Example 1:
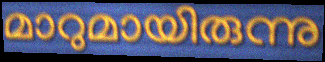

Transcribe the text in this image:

മാറുമായിരുന്നു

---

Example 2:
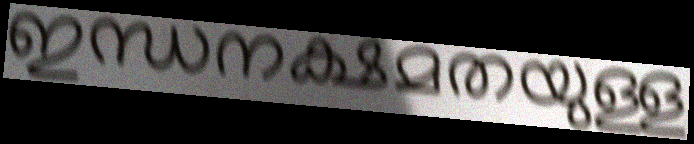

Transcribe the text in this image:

ഇന്ധനക്ഷമതയുള്ള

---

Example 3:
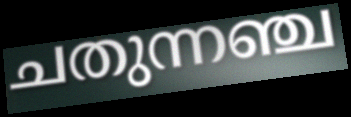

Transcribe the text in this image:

ചതുന്നഞ്ച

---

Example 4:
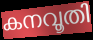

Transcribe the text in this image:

കനവൂതി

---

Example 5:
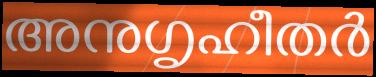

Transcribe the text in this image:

അനുഗൃഹീതർ